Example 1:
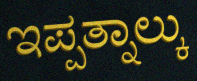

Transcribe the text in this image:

ಇಪ್ಪತ್ನಾಲ್ಕು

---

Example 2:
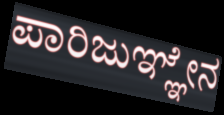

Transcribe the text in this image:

ಪಾರಿಜುಞ್ಞೇನ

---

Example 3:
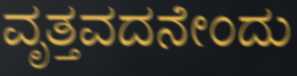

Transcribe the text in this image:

ವೃತ್ತವದನೇಂದು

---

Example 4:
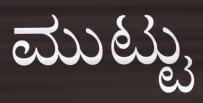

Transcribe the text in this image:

ಮುಟ್ಟು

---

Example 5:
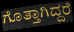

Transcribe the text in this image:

ಗೊತ್ತಾಗಿದ್ದರೆ